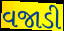
વજાડી